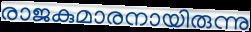
രാജകുമാരനായിരുന്നു